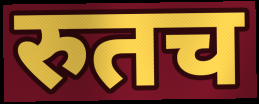
रुतच